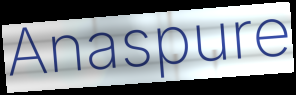
Anaspure